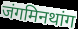
जंगमिनथांग